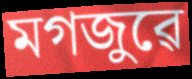
মগজুৱে